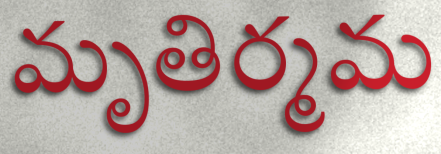
మృతిర్మమ